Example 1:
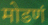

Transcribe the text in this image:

मोडणं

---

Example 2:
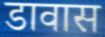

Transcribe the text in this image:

डावास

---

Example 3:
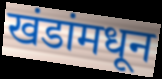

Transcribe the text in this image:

खंडांमधून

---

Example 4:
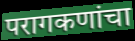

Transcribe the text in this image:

परागकणांचा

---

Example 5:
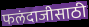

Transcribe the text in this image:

फलंदाजीसाठी